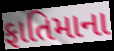
ફાતિમાના